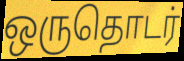
ஒருதொடர்